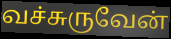
வச்சுருவேன்